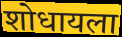
शोधायला